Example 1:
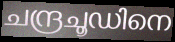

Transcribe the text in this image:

ചന്ദ്രചൂഡിനെ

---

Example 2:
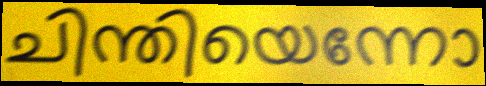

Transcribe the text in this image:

ചിന്തിയെന്നോ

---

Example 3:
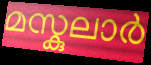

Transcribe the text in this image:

മസ്കുലാർ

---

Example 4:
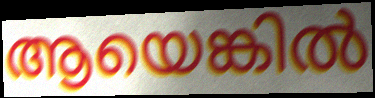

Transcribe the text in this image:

ആയെങ്കിൽ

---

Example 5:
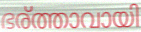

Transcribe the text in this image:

ഭര്ത്താവായി